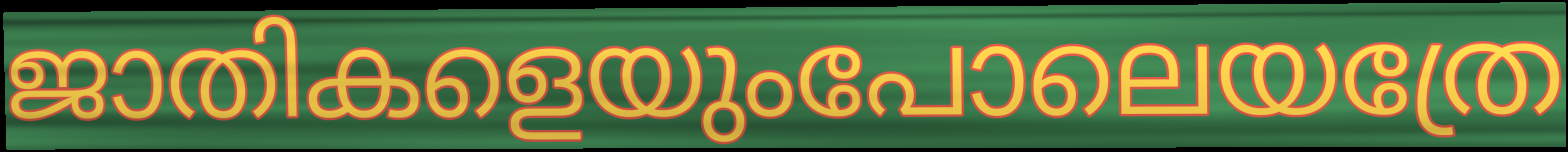
ജാതികളെയുംപോലെയത്രേ